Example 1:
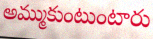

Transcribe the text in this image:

అమ్ముకుంటుంటారు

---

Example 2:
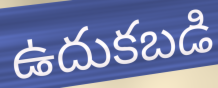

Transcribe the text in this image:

ఉదుకబడి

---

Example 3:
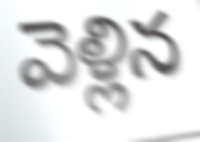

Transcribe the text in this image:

వెళ్లిన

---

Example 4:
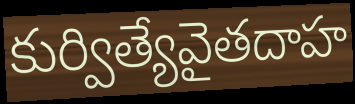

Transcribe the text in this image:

కుర్విత్యేవైతదాహ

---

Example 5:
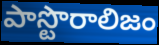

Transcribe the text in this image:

పాస్టొరాలిజం